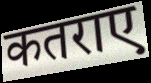
कतराए